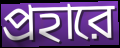
প্রহারে